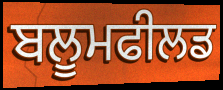
ਬਲੂਮਫੀਲਡ